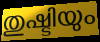
തുഷ്ടിയും